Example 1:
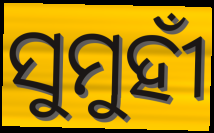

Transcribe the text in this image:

ସୁମୁହୀଁ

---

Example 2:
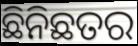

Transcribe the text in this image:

ଛିନିଛତର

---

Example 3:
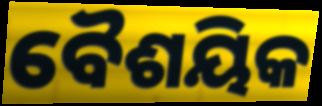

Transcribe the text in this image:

ବୈଶୟିକ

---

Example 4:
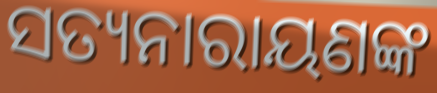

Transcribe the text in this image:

ସତ୍ୟନାରାୟଣଙ୍କ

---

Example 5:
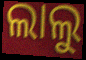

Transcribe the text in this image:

ଲାଲୁ